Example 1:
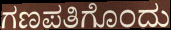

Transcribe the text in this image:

ಗಣಪತಿಗೊಂದು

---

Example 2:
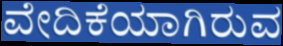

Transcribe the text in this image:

ವೇದಿಕೆಯಾಗಿರುವ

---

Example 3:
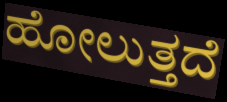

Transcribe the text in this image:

ಹೋಲುತ್ತದೆ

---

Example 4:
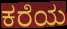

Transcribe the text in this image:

ಕರೆಯ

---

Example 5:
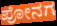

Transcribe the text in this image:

ಪೋನಗ